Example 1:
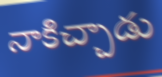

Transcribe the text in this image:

నాకిచ్చాడు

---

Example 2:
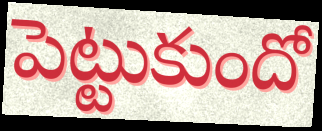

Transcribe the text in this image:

పెట్టుకుందో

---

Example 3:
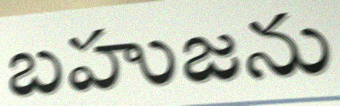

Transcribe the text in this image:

బహుజను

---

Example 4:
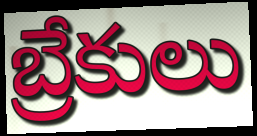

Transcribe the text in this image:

బ్రేకులు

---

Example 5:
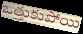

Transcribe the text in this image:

ఒత్తుకుపోయి